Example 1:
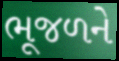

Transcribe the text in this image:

ભૂજળને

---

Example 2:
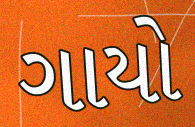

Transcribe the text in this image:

ગાયો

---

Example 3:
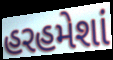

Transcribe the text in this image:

હરહમેશાં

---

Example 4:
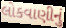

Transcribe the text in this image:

લોકવાણીનું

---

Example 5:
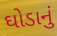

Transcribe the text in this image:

ઘોડાનું